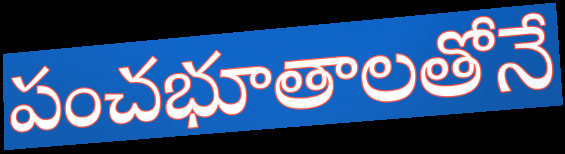
పంచభూతాలతోనే